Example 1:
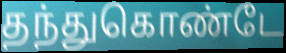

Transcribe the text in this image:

தந்துகொண்டே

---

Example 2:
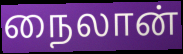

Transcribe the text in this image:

நைலான்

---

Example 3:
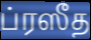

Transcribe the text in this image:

ப்ரஸீத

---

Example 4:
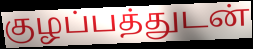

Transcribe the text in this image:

குழப்பத்துடன்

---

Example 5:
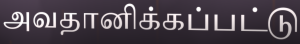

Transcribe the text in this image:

அவதானிக்கப்பட்டு